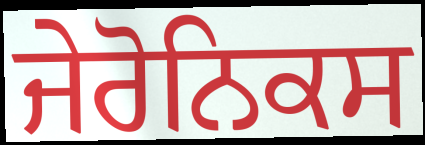
ਜੇਰੋਨਿਕਸ